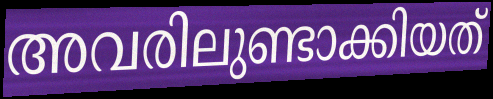
അവരിലുണ്ടാക്കിയത്